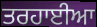
ਤਰਹਾਈਆ